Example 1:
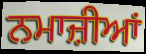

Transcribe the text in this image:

ਨਮਾਜ਼ੀਆਂ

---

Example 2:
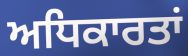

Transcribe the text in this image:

ਅਧਿਕਾਰਤਾਂ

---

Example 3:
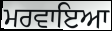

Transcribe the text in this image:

ਮਰਵਾਇਆ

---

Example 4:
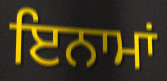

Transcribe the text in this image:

ਇਨਾਮਾਂ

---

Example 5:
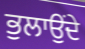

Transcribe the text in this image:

ਭੁਲਾਉਂਦੇ